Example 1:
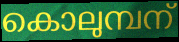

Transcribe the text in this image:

കൊലുമ്പന്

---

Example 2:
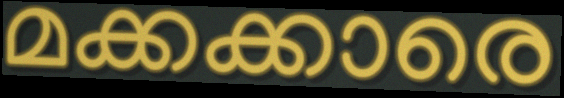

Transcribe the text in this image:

മക്കക്കാരെ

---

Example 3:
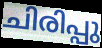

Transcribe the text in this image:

ചിരിപ്പു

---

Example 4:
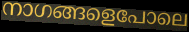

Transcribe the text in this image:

നാഗങ്ങളെപോലെ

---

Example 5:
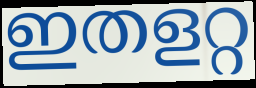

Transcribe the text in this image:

ഇതളറ്റ